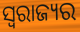
ସ୍ୱରାଜ୍ୟର